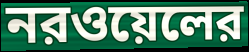
নরওয়েলের